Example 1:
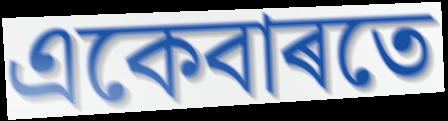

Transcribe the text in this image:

একেবাৰতে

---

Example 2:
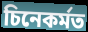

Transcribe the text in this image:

চিনেকৰ্মত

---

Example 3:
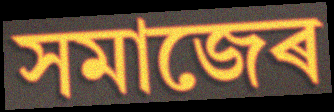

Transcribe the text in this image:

সমাজেৰ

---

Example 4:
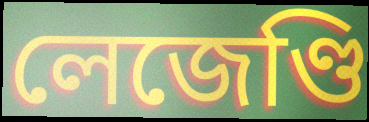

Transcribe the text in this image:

লেজেণ্ডি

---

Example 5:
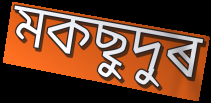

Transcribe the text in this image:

মকছুদুৰ